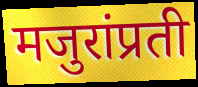
मजुरांप्रती